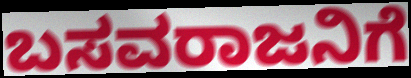
ಬಸವರಾಜನಿಗೆ